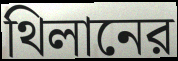
থিলানের